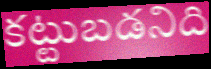
కట్టుబడనిది